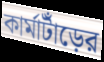
কার্মাটাঁড়ের